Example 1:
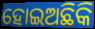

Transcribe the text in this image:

ହୋଇଅଛିକି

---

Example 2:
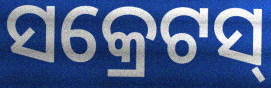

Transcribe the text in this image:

ସକ୍ରେଟସ୍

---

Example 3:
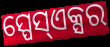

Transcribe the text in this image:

ସ୍ପେସ୍ଏକ୍ସର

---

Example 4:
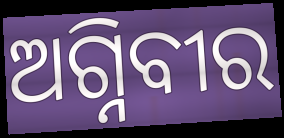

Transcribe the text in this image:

ଅଗ୍ନିବୀର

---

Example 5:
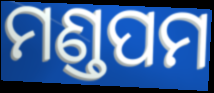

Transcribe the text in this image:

ମଣ୍ଡପମ